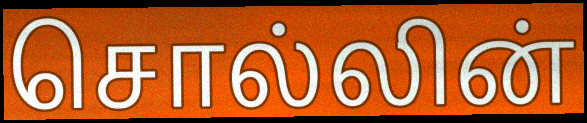
சொல்லின்